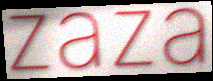
zaza